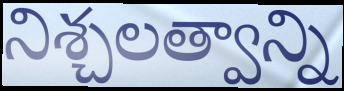
నిశ్చలత్వాన్ని